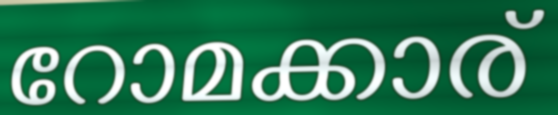
റോമക്കാര്